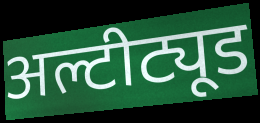
अल्टीट्यूड